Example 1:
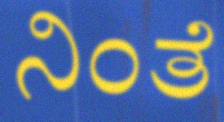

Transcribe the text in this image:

ನಿಂತೆ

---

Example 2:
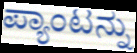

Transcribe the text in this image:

ಪ್ಯಾಂಟನ್ನು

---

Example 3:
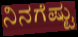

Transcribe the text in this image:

ನಿನಗೆಷ್ಟು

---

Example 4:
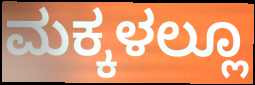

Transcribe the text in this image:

ಮಕ್ಕಳಲ್ಲೂ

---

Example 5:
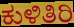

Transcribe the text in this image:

ಕುಳಿತಿರಿ